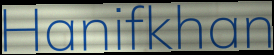
Hanifkhan